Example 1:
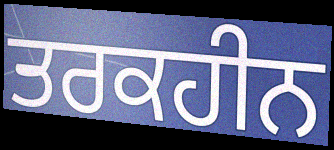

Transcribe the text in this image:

ਤਰਕਹੀਨ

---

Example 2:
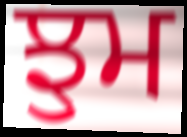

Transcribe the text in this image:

ਝੁਮ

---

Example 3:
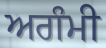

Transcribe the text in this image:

ਅਗੰਮੀ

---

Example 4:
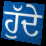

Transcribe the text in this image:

ਹੁੱਦੇ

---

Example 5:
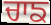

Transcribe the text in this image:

ਚਾਙ